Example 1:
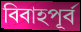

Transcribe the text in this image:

বিবাহপূর্ব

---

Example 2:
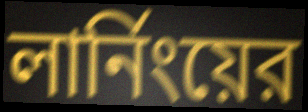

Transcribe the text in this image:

লার্নিংয়ের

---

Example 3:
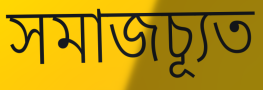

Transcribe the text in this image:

সমাজচ্যূত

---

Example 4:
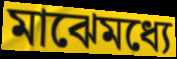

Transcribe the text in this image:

মাঝেমধ্যে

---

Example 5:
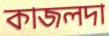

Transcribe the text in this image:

কাজলদা